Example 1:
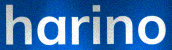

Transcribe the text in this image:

harino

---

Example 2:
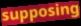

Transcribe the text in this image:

supposing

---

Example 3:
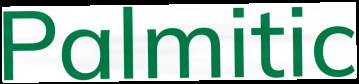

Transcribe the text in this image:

Palmitic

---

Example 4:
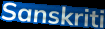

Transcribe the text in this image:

Sanskriti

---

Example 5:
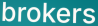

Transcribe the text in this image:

brokers